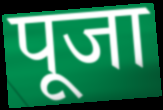
पूजा